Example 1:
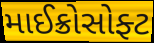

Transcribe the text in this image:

માઈક્રોસોફ્ટ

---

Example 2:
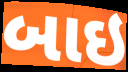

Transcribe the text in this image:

બાઇ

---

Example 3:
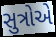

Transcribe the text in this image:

સુત્રોએ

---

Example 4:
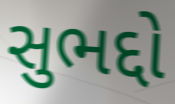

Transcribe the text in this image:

સુભદ્દો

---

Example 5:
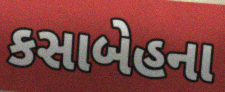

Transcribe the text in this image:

કસાબેહના